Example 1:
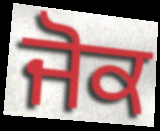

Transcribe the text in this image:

ਜੋਕ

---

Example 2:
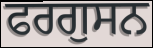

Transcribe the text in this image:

ਫਰਗੁਸਨ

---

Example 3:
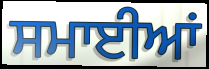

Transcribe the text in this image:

ਸਮਾਈਆਂ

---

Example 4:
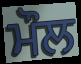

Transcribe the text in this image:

ਮੌਲ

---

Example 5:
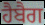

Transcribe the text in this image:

ਹੈਬੈਗ